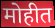
मोहीत